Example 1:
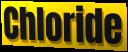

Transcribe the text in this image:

Chloride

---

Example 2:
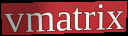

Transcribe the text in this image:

vmatrix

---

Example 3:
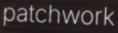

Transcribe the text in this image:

patchwork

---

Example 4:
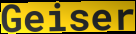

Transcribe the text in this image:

Geiser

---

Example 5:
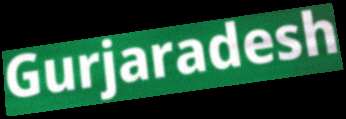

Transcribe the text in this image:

Gurjaradesh